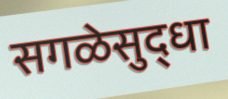
सगळेसुद्धा